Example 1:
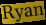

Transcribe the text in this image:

Ryan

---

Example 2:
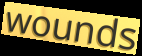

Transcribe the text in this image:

wounds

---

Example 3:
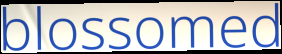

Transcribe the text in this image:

blossomed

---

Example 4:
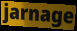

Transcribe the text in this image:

jarnage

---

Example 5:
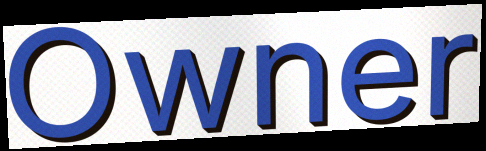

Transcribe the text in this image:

Owner